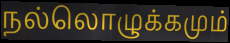
நல்லொழுக்கமும்